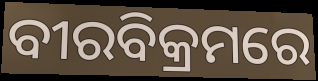
ବୀରବିକ୍ରମରେ